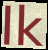
Ik